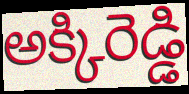
అక్కిరెడ్డి